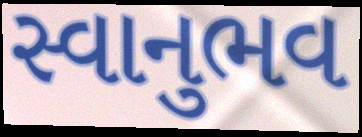
સ્વાનુભવ